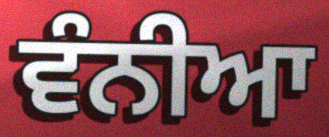
ਵੰਨੀਆ